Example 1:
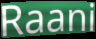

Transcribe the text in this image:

Raani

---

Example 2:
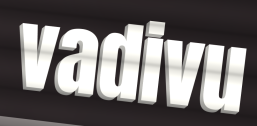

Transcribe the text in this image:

vadivu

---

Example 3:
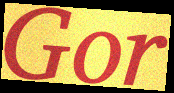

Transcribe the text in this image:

Gor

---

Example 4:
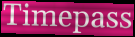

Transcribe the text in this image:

Timepass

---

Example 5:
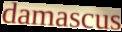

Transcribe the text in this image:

damascus